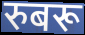
रुबरू